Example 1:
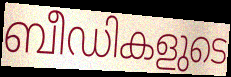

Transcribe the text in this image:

ബീഡികളുടെ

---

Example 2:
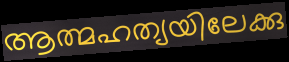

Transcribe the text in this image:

ആത്മഹത്യയിലേക്കു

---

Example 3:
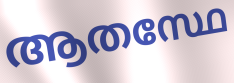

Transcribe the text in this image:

ആതസ്ഥേ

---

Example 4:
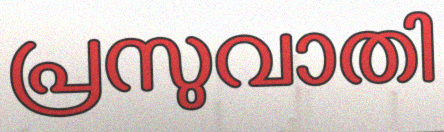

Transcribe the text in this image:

പ്രസുവാതി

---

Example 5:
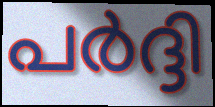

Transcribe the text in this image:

പർദ്ദി